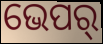
ଭେପର୍